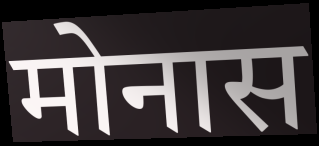
मोनास